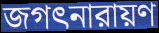
জগৎনারায়ণ